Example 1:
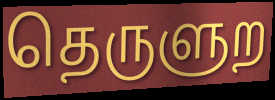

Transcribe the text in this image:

தெருளுற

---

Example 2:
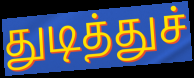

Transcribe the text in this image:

துடித்துச்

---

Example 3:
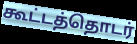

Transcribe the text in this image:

கூட்டத்தொடர்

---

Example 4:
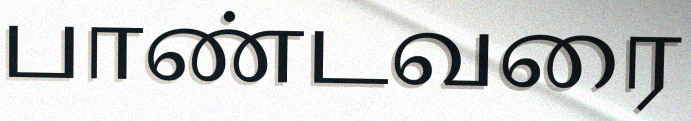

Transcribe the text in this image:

பாண்டவரை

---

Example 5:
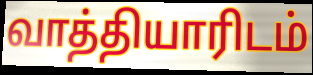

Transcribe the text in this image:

வாத்தியாரிடம்